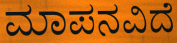
ಮಾಪನವಿದೆ